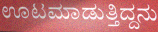
ಊಟಮಾಡುತ್ತಿದ್ದನು